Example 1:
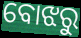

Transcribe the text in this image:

ବୋଝରୁ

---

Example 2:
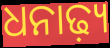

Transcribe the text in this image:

ଧନାଢ଼୍ୟ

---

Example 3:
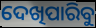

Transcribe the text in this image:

ଦେଖିପାରିବୁ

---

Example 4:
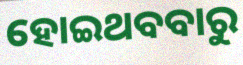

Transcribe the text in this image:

ହୋଇଥବବାରୁ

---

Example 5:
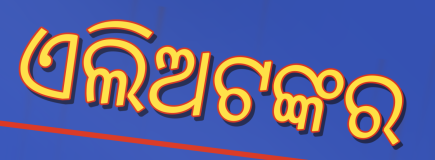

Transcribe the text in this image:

ଏଲିଅଟଙ୍କର